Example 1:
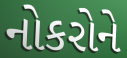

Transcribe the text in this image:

નોકરોને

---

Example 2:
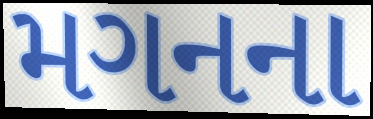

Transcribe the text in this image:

મગનના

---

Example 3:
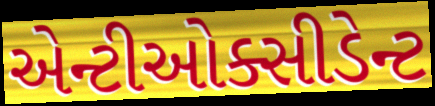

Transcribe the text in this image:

એન્ટીઓક્સીડેન્ટ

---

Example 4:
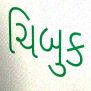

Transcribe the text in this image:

ચિબુક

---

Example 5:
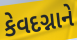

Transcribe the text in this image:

કેવદગ્નાને